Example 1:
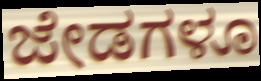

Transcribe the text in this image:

ಜೇಡಗಳೂ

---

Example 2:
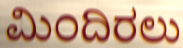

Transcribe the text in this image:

ಮಿಂದಿರಲು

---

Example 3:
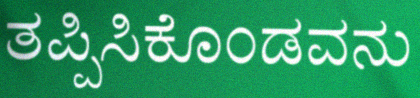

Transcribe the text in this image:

ತಪ್ಪಿಸಿಕೊಂಡವನು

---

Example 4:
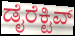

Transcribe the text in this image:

ಡೈರೆಕ್ಟಿವ್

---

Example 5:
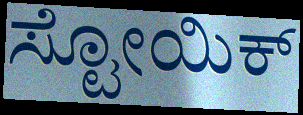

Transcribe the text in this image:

ಸ್ಟೋಯಿಕ್